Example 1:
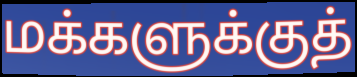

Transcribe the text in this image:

மக்களுக்குத்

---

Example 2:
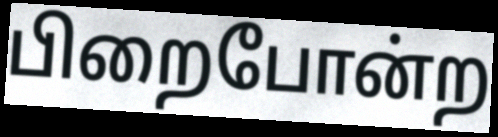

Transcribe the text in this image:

பிறைபோன்ற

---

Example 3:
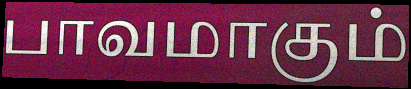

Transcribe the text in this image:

பாவமாகும்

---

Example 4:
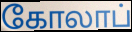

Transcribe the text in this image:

கோலாப்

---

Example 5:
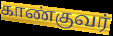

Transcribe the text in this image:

காண்குவர்